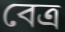
বেত্র